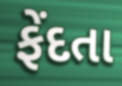
ફેંદતા